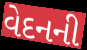
વેદનની